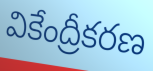
వికేంద్రీకరణ